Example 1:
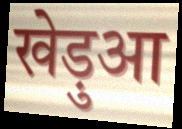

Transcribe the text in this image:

खेड़ुआ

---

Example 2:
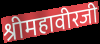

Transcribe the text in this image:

श्रीमहावीरजी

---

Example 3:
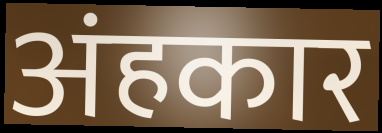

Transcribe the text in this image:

अंहकार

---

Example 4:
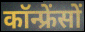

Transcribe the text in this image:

कॉन्फ्रेंसों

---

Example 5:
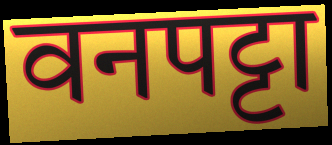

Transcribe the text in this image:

वनपट्टा